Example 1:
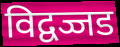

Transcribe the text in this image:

विद्वज्जड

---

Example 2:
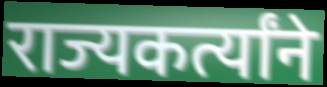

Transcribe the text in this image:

राज्यकर्त्यांने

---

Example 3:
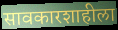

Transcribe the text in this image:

सावकारशाहीला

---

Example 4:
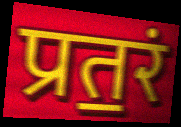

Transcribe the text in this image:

प्रत॒रं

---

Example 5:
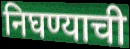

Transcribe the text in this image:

निघण्याची